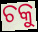
ଚକୁ